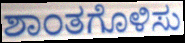
ಶಾಂತಗೊಳಿಸು